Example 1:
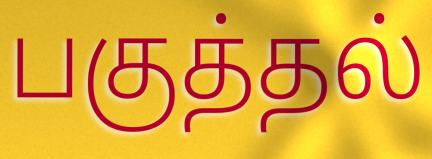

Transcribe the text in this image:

பகுத்தல்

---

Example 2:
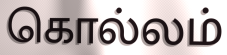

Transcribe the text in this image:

கொல்லம்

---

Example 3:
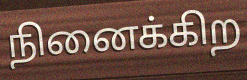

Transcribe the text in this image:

நினைக்கிற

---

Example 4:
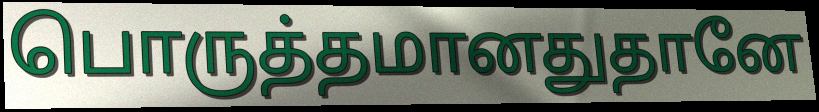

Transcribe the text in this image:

பொருத்தமானதுதானே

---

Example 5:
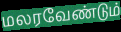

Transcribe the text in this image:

மலரவேண்டும்